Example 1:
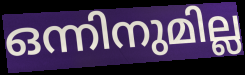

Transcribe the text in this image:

ഒന്നിനുമില്ല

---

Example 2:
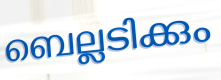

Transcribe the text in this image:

ബെല്ലടിക്കും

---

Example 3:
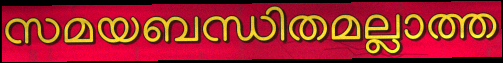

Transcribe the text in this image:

സമയബന്ധിതമല്ലാത്ത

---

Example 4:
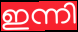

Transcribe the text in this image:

ഇന്നി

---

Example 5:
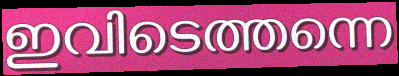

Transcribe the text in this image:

ഇവിടെത്തന്നെ